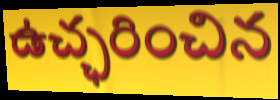
ఉచ్ఛరించిన